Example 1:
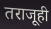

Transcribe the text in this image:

तराजूही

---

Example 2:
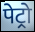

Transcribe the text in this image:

पेट्रो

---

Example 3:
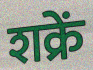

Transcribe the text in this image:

शक्रें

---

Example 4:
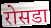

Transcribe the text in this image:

रोसडा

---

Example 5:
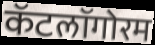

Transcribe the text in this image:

कॅटलॉगोरम